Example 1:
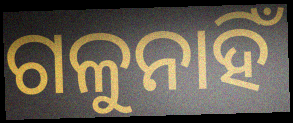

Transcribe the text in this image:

ଗଳୁନାହିଁ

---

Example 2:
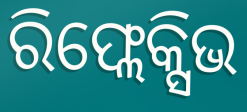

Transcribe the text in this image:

ରିଫ୍ଲେକ୍ସିଭ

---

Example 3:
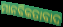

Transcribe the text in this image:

ମାନବିକତାବାଦ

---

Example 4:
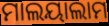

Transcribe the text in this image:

ମାଲୟାଲାମ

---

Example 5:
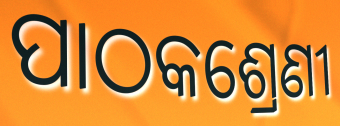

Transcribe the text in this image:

ପାଠକଶ୍ରେଣୀ